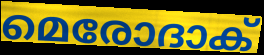
മെരോദാക്